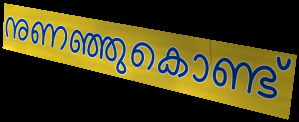
നുണഞ്ഞുകൊണ്ട്